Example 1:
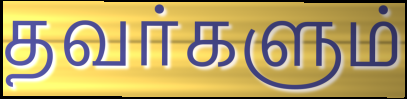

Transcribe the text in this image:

தவர்களும்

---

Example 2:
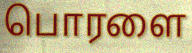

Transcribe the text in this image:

பொரளை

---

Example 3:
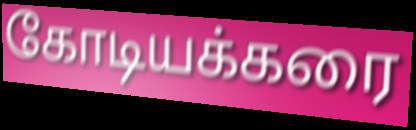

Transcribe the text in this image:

கோடியக்கரை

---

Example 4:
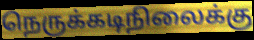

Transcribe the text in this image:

நெருக்கடிநிலைக்கு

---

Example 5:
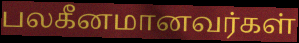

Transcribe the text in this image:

பலகீனமானவர்கள்